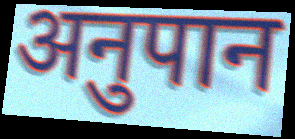
अनुपान